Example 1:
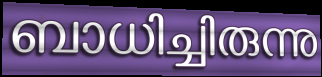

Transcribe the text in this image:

ബാധിച്ചിരുന്നു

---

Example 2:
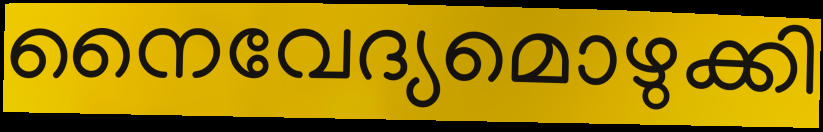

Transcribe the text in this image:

നൈവേദ്യമൊഴുക്കി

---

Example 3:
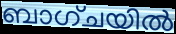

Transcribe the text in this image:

ബാഗ്ചയിൽ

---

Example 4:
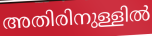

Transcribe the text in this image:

അതിരിനുള്ളിൽ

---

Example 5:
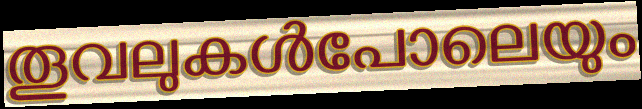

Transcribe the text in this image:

തൂവലുകൾപോലെയും